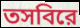
তসবিরে